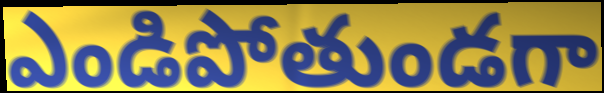
ఎండిపోతుండగా